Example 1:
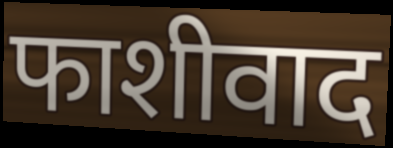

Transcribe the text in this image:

फाशीवाद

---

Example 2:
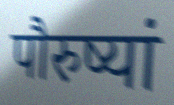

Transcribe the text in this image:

पौरुष्यां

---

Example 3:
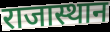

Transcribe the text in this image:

राजास्थान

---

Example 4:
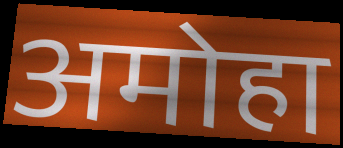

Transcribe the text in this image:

अमोहा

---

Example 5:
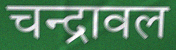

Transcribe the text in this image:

चन्द्रावल